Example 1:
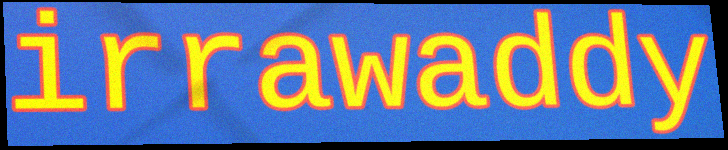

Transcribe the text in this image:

irrawaddy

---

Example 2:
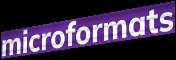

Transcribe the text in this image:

microformats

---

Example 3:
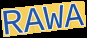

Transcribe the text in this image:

RAWA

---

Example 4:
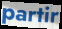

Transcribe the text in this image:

partir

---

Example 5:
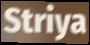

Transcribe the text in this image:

Striya